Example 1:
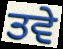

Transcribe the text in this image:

ਤਵੇ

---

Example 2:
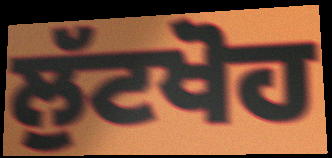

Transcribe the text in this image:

ਲੁੱਟਖੋਹ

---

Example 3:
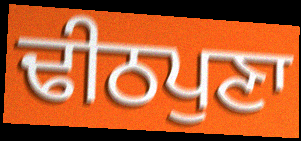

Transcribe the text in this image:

ਢੀਠਪੁਣਾ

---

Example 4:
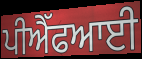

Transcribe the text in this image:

ਪੀਐੱਫਆਈ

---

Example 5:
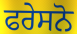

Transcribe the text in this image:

ਫਰੇਸਨੋ